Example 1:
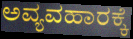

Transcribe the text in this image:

ಅವ್ಯವಹಾರಕ್ಕೆ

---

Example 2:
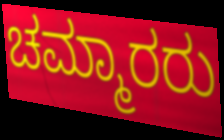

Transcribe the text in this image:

ಚಮ್ಮಾರರು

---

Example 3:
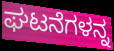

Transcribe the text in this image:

ಘಟನೆಗಳನ್ನ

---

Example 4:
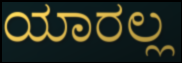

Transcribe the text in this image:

ಯಾರಲ್ಲ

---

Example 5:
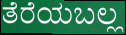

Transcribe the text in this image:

ತೆರೆಯಬಲ್ಲ